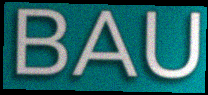
BAU